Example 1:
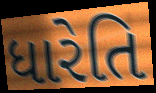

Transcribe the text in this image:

ધારેતિ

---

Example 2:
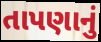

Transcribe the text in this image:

તાપણાનું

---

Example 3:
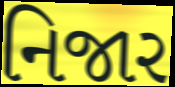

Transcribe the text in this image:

નિજાર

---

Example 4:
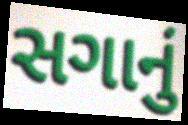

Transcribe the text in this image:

સગાનું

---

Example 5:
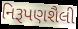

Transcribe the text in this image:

નિરૂપણશૈલી